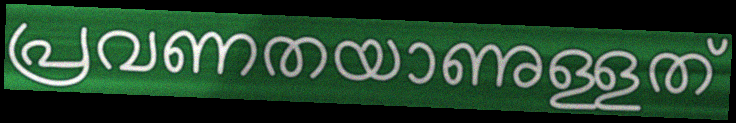
പ്രവണതയാണുള്ളത്